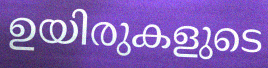
ഉയിരുകളുടെ